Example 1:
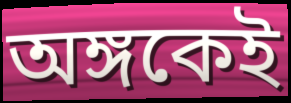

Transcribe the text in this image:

অঙ্গকেই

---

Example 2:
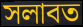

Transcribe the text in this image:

সলাবত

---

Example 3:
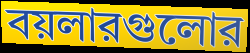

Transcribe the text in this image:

বয়লারগুলোর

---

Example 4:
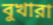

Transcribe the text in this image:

বুখারা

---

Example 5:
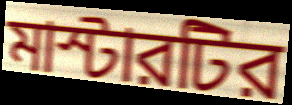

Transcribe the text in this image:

মাস্টারটির